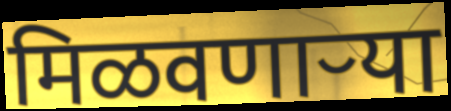
मिळवणाऱ्या